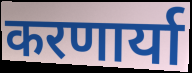
करणार्या